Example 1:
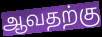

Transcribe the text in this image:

ஆவதற்கு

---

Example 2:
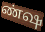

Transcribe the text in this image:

ண்ஷ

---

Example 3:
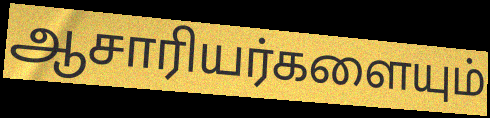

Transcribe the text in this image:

ஆசாரியர்களையும்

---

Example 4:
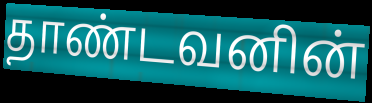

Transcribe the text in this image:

தாண்டவனின்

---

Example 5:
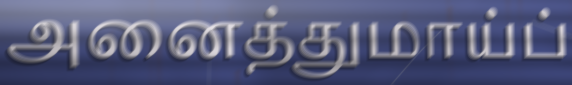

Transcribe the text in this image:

அனைத்துமாய்ப்